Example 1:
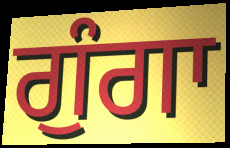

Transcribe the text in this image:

ਗੁੰਗਾ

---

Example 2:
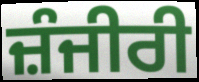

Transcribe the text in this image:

ਜ਼ੰਜੀਰੀ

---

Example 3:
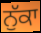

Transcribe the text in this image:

ਨੁੱਕਾ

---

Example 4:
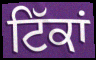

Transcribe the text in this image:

ਟਿੱਕਾਂ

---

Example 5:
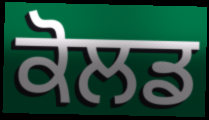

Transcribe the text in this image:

ਕੋਲਡ